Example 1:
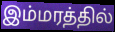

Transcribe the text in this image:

இம்மரத்தில்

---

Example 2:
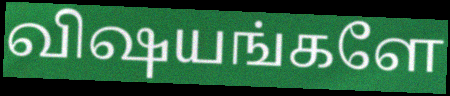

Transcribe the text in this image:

விஷயங்களே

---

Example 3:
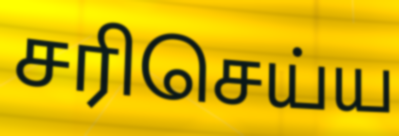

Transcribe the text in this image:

சரிசெய்ய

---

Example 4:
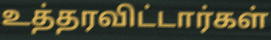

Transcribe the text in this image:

உத்தரவிட்டார்கள்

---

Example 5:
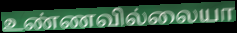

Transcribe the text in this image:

உண்ணவில்லையா